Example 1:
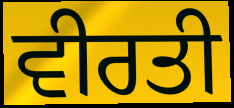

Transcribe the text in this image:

ਵੀਰਤੀ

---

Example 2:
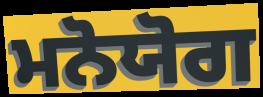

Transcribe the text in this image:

ਮਨੋਯੋਗ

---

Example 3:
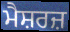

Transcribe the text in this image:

ਮੈਸ਼ਰਜ਼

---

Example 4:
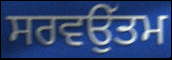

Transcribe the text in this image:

ਸਰਵਉੱਤਮ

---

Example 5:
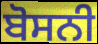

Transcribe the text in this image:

ਬੋਸਨੀ